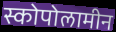
स्कोपोलामीन